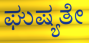
ಘುಷ್ಯತೇ